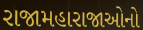
રાજામહારાજાઓનો